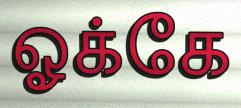
ஓக்கே